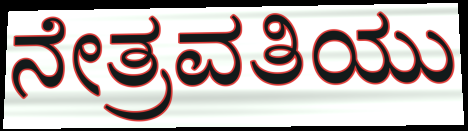
ನೇತ್ರವತಿಯು